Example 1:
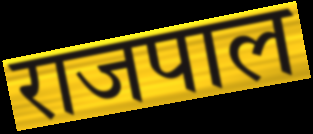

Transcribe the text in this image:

राजपाल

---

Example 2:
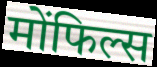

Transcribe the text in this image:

मोंफिल्स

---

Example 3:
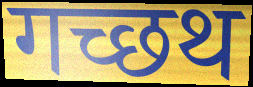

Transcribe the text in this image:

गच्छथ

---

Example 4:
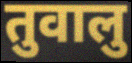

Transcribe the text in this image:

तुवालु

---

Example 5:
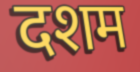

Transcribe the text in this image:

दशम